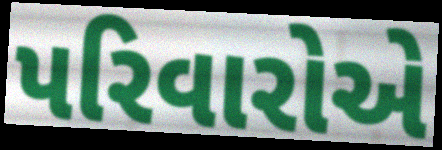
પરિવારોએ